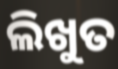
ଲିଖୁତ